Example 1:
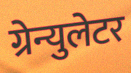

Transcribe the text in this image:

ग्रेन्युलेटर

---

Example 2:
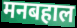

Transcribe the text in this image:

मनबहाल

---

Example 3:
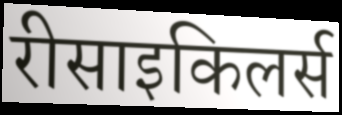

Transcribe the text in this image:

रीसाइकिलर्स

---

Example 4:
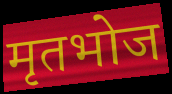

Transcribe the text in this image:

मृतभोज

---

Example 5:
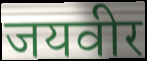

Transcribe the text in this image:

जयवीर